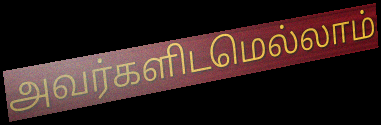
அவர்களிடமெல்லாம்